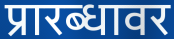
प्रारब्धावर